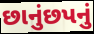
છાનુંછપનું